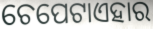
ଚେପେଟାଏହାର